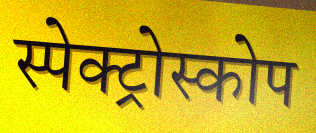
स्पेक्ट्रोस्कोप